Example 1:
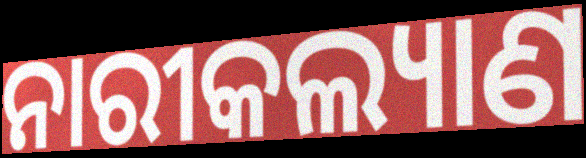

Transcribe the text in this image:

ନାରୀକଲ୍ୟାଣ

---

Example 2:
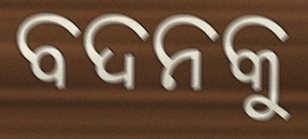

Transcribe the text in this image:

ବଦନକୁ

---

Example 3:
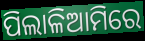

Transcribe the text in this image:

ପିଲାଳିଆମିରେ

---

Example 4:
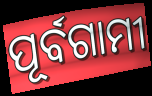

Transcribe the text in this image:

ପୂର୍ବଗାମୀ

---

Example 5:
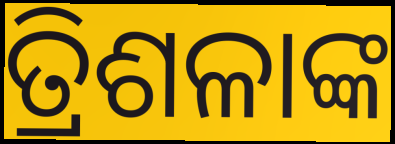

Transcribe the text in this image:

ତ୍ରିଶଳାଙ୍କ